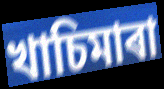
খাচিমাৰা